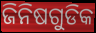
ଜିନିଷଗୁଡିକ